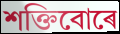
শক্তিবোৰে